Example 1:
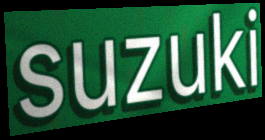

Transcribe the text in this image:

suzuki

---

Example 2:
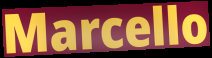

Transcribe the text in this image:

Marcello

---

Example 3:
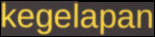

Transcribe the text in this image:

kegelapan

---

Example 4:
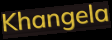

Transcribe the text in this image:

Khangela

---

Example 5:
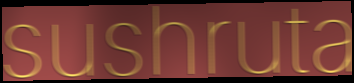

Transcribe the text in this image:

sushruta